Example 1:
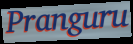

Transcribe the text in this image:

Pranguru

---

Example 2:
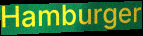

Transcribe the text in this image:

Hamburger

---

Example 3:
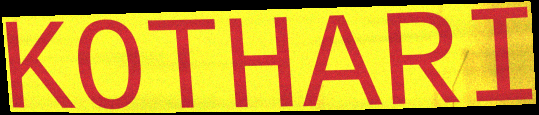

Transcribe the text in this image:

KOTHARI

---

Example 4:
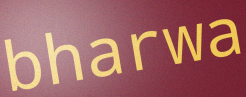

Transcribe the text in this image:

bharwa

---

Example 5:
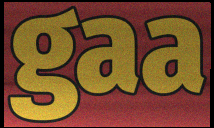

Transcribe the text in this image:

gaa